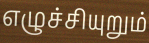
எழுச்சியுறும்